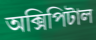
অক্সিপিটাল